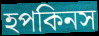
হপকিনস